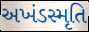
અખંડસ્મૃતિ